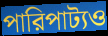
পারিপাট্যও